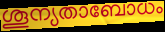
ശൂന്യതാബോധം